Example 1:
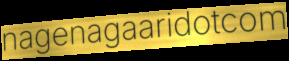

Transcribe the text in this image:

nagenagaaridotcom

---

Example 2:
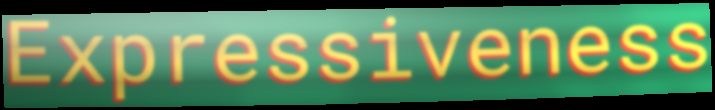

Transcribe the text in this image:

Expressiveness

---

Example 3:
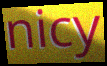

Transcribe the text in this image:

nicy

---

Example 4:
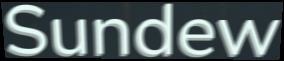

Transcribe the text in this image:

Sundew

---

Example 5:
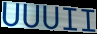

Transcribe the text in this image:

UUUII